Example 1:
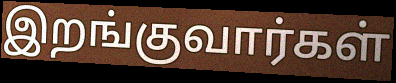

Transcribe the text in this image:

இறங்குவார்கள்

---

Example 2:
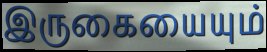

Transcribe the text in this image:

இருகையையும்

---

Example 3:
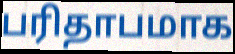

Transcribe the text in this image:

பரிதாபமாக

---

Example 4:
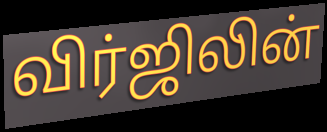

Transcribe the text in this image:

விர்ஜிலின்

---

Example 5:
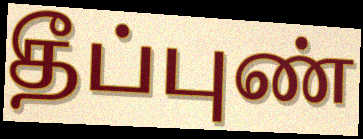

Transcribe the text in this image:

தீப்புண்